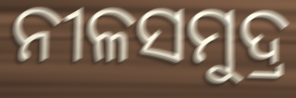
ନୀଳସମୁଦ୍ର